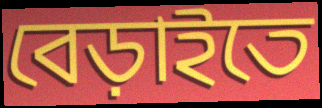
বেড়াইতে